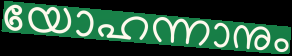
യോഹന്നാനും